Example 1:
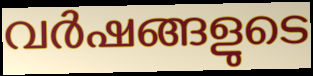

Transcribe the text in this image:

വർഷങ്ങളുടെ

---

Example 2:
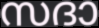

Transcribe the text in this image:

സദാ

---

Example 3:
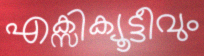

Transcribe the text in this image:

എക്സിക്യൂട്ടീവും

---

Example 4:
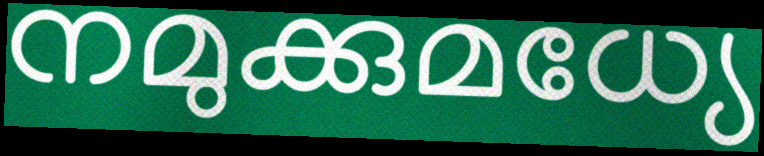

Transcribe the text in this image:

നമുക്കുമധ്യേ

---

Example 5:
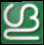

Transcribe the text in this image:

ഗൂ